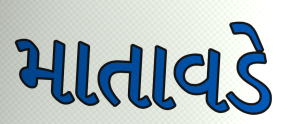
માતાવડે